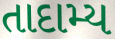
તાદામ્ય